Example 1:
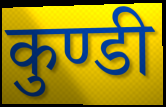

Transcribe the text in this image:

कुण्डी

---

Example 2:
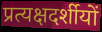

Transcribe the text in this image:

प्रत्यक्षदर्शीयों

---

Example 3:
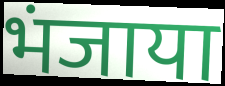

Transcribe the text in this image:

भंजाया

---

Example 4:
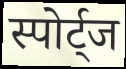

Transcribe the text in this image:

स्पोर्ट्ज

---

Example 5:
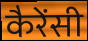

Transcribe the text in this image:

कैरेंसी